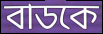
বাডকে